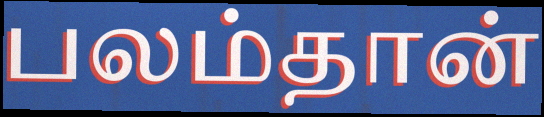
பலம்தான்